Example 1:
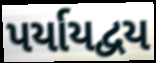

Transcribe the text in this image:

પર્યાયદ્વય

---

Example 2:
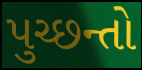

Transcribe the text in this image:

પુચ્છન્તો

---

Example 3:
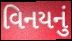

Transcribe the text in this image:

વિનયનું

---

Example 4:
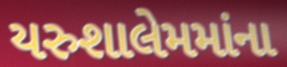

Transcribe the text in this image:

યરુશાલેમમાંના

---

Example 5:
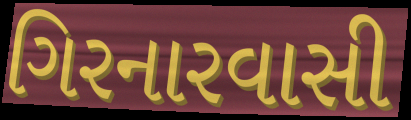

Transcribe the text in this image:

ગિરનારવાસી